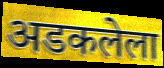
अडकलेला